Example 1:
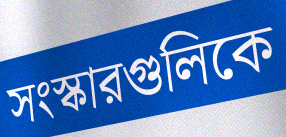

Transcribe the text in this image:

সংস্কারগুলিকে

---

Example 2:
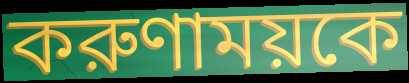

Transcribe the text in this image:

করুণাময়কে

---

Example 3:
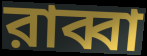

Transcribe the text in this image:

রাব্বা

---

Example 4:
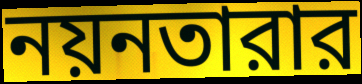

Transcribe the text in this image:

নয়নতারার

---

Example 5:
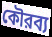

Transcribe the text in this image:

কৌরব্য